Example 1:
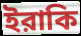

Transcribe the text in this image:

ইরাকি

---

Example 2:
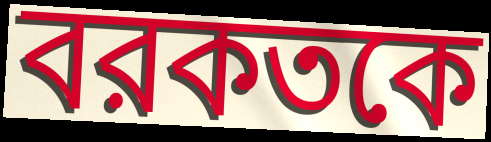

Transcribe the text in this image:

বরকতকে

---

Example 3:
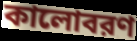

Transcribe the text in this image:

কালোবরণ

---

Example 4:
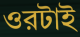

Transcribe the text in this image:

ওরটাই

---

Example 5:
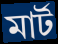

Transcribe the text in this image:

মার্ট